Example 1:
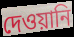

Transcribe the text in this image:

দেওয়ানি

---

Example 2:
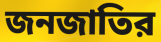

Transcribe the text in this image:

জনজাতির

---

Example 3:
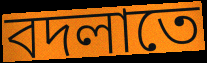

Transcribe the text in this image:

বদলাতে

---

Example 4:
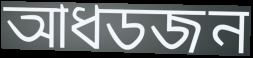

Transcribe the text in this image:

আধডজন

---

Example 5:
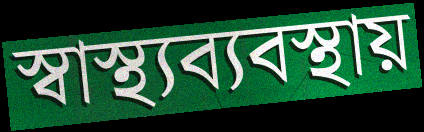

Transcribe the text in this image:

স্বাস্থ্যব্যবস্থায়